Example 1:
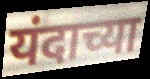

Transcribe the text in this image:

यंदाच्या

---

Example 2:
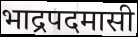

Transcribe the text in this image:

भाद्रपदमासी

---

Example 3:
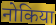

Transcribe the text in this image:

नोकिया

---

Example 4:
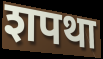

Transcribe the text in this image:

शपथा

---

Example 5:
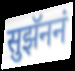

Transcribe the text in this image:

सुझॅननं